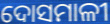
ଦୋସମାଳୀ